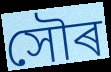
সৌৰ